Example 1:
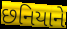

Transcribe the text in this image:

છનિયાને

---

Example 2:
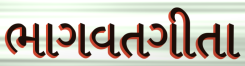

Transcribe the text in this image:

ભાગવતગીતા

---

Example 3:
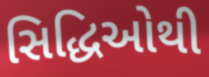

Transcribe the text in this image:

સિદ્ધિઓથી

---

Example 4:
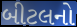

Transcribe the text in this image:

બીટલનો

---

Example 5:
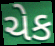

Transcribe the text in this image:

ચેક